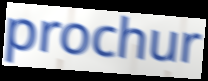
prochur